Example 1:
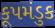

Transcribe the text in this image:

કૂપમંડુક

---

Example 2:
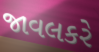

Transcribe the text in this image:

જાવલકરે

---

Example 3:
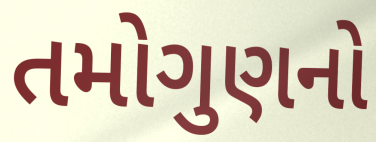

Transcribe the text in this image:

તમોગુણનો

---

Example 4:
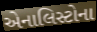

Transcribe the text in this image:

એનાલિસ્ટોના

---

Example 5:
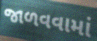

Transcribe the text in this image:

જાળવવામાં